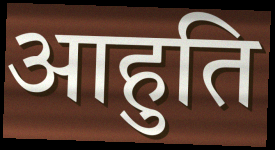
आहुति